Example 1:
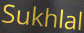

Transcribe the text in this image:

Sukhlal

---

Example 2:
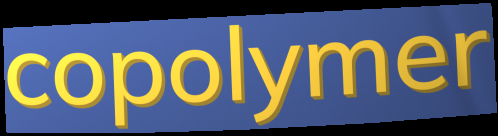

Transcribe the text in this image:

copolymer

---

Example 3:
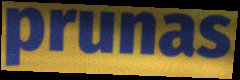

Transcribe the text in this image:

prunas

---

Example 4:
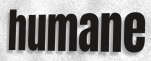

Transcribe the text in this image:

humane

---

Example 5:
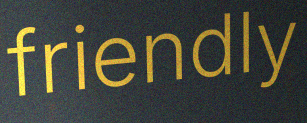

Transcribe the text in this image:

friendly